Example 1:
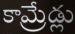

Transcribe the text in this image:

కామ్రేడ్లు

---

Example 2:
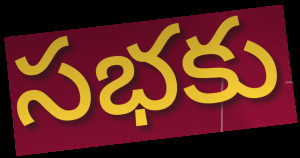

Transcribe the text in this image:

సభకు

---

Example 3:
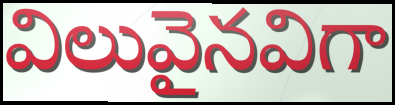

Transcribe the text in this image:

విలువైనవిగా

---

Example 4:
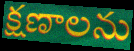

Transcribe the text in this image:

క్షణాలను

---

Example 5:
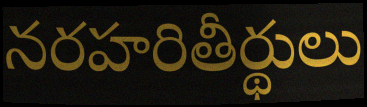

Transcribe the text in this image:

నరహరితీర్థులు